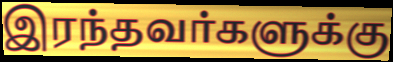
இரந்தவர்களுக்கு